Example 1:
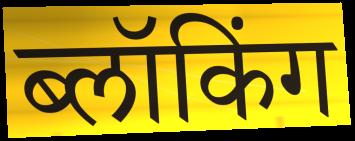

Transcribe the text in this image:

ब्लॉकिंग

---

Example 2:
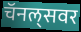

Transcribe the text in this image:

चॅनल्सवर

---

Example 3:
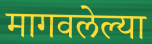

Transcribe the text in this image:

मागवलेल्या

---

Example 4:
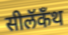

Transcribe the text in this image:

सीलॅकँथ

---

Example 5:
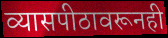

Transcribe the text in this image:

व्यासपीठावरूनही